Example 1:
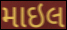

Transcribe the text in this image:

માઇલ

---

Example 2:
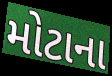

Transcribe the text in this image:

મોટાના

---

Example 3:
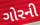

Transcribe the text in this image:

ગોરની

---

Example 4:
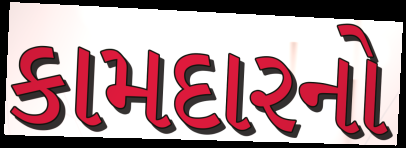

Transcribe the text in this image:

કામદારનો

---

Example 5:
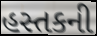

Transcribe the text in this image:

હસ્તકની